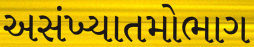
અસંખ્યાતમોભાગ